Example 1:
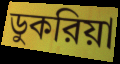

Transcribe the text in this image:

ডুকরিয়া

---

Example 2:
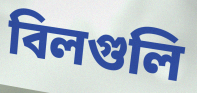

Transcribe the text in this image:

বিলগুলি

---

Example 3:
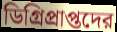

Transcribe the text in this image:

ডিগ্রিপ্রাপ্তদের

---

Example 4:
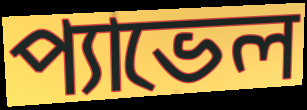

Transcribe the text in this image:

প্যাভেল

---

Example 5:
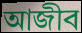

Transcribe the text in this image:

আজীব